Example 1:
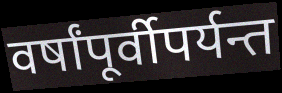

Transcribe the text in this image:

वर्षांपूर्वीपर्यन्त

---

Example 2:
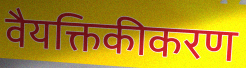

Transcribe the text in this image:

वैयक्तिकीकरण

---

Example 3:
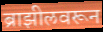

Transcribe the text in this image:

ब्राझीलवरून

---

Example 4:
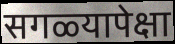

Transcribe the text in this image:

सगळ्यापेक्षा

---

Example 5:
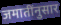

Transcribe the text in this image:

जमातींनुसार